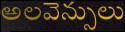
అలవెన్సులు